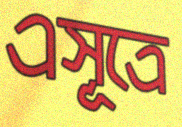
এসূত্রে